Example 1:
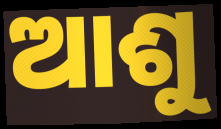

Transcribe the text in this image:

ଆଶୁ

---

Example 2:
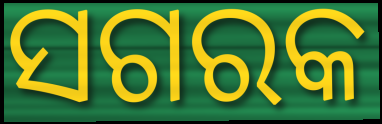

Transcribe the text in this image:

ସଗରକ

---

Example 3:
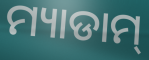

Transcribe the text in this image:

ମ୍ୟାଡାମ୍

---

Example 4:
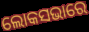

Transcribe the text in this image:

ଲୋକସଭାରେ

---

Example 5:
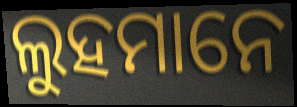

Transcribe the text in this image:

ଲୁହମାନେ